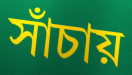
সাঁচায়